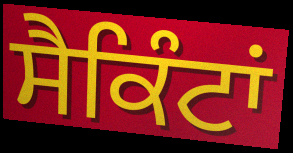
ਸੈਕਿੰਟਾਂ